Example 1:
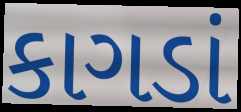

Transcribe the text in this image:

કાગડાં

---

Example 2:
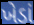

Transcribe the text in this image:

ખેડાં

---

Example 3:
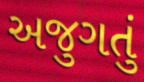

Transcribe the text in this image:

અજુગતું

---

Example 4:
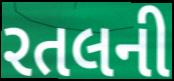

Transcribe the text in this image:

રતલની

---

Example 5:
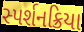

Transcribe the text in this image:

સ્પર્શનક્રિયા